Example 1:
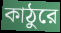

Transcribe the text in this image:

কাঠুরে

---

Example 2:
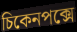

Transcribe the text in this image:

চিকেনপক্সে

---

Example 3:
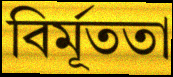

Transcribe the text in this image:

বির্মূততা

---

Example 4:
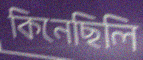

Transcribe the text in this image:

কিনেছিলি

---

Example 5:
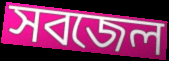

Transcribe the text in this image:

সবজেল